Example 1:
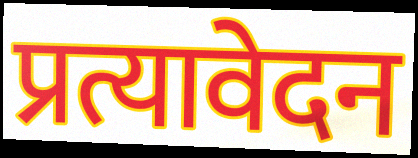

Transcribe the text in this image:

प्रत्यावेदन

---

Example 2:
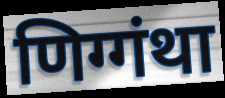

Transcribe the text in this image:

णिग्गंथा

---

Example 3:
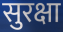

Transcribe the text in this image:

सुरक्षा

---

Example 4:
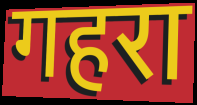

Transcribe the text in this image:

गहरा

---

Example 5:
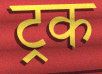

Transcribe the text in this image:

ट्रक